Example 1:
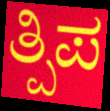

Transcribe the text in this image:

ತ್ಪಿಪ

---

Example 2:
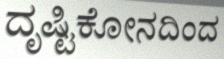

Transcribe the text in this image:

ದೃಷ್ಟಿಕೋನದಿಂದ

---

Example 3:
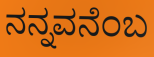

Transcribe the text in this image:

ನನ್ನವನೆಂಬ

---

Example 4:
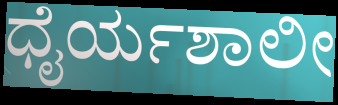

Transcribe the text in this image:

ಧೈರ್ಯಶಾಲೀ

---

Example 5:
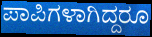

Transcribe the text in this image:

ಪಾಪಿಗಳಾಗಿದ್ದರೂ